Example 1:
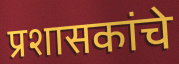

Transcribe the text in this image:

प्रशासकांचे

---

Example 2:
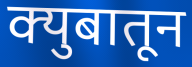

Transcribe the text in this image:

क्युबातून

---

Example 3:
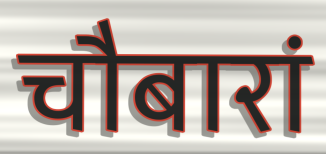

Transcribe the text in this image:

चौबारां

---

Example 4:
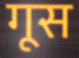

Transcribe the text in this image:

गूस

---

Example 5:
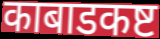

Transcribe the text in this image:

काबाडकष्ट